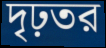
দৃঢ়তর